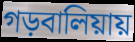
গড়বালিয়ায়